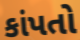
કાંપતો